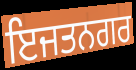
ਇਜਤਨਗਰ